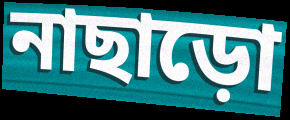
নাছাড়ো